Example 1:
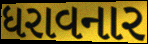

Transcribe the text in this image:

ધરાવનાર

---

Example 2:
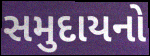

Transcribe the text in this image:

સમુદાયનો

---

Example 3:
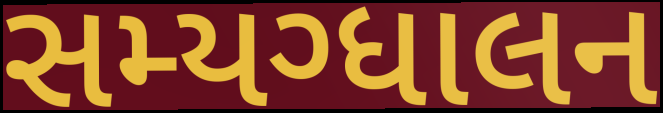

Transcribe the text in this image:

સમ્યગ્ધાલન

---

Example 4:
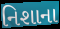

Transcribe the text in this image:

નિશાના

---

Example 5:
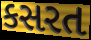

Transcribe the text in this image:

કસરત